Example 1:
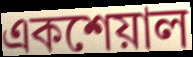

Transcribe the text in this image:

একশেয়াল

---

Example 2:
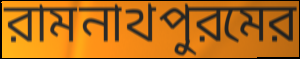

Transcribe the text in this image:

রামনাথপুরমের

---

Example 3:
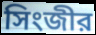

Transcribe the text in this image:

সিংজীর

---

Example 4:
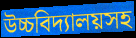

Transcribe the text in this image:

উচ্চবিদ্যালয়সহ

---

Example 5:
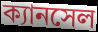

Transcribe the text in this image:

ক্যানসেল